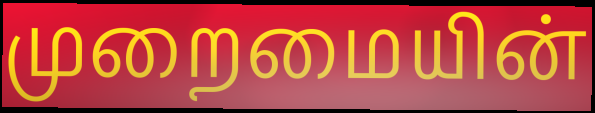
முறைமையின்